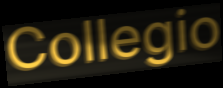
Collegio